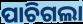
ପାଚିଗଲା